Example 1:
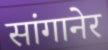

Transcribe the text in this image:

सांगानेर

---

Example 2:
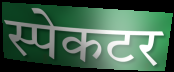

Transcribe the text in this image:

स्पेकटर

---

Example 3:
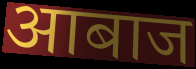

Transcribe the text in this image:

आबाज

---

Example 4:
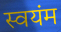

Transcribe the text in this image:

स्वयंम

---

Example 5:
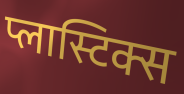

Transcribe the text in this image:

प्लास्टिक्स